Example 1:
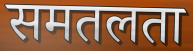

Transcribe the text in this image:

समतलता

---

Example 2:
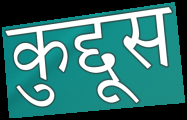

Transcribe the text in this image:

कुद्दूस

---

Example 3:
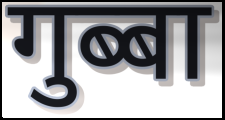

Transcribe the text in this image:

गुब्बा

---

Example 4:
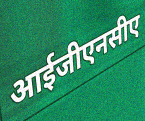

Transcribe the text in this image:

आईजीएनसीए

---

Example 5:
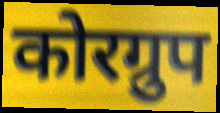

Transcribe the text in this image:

कोरग्रुप